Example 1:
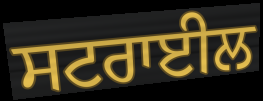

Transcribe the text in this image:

ਸਟਰਾਈਲ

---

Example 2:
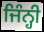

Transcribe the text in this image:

ਜਿੰਨ੍ਹੀ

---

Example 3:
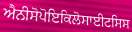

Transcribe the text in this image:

ਐਨੀਸੋਪੋਇਕਿਲੋਸਾਈਟਸਿਸ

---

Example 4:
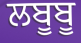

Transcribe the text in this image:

ਲਬੂਬੂ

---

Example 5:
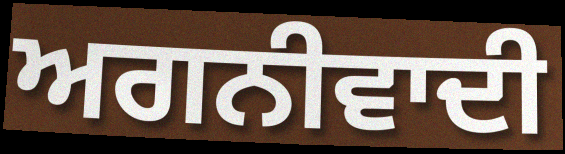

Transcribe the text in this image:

ਅਗਨੀਵਾਦੀ